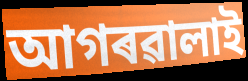
আগৰৱালাই